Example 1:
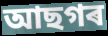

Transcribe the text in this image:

আছগৰ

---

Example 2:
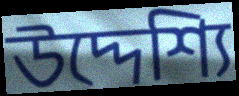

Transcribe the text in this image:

উদ্দেশ্যি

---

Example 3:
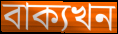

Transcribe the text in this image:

বাক্যখন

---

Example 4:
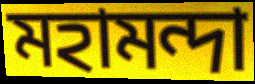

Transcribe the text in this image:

মহামন্দা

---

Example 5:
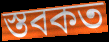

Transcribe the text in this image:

স্তবকত